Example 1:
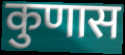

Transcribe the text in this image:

कुणास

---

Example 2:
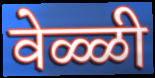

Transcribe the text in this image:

वेळ्ळी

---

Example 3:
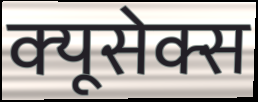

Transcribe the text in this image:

क्यूसेक्स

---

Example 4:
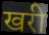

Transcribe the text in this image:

खरी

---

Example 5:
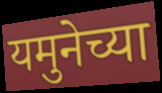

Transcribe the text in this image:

यमुनेच्या